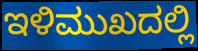
ಇಳಿಮುಖದಲ್ಲಿ